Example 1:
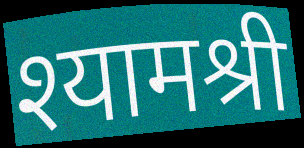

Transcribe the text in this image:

श्यामश्री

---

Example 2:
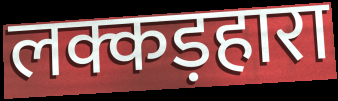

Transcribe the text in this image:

लक्कड़हारा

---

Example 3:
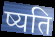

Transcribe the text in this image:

ष्यति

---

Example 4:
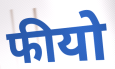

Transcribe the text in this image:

फीयो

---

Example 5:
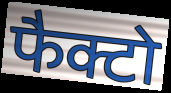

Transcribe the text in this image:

फैक्टो